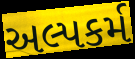
અલ્પકર્મ